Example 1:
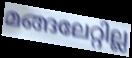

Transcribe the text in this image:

മങ്ങലേറ്റില്ല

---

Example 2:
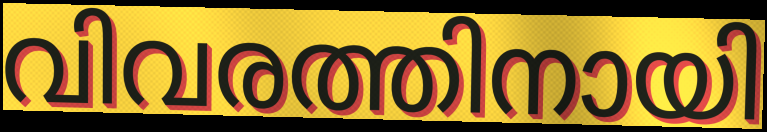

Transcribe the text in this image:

വിവരത്തിനായി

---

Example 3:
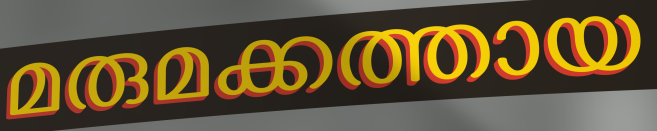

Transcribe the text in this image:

മരുമക്കത്തായ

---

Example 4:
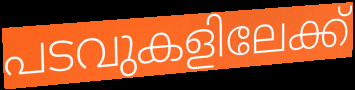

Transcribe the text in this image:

പടവുകളിലേക്ക്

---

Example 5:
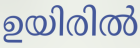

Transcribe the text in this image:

ഉയിരിൽ